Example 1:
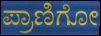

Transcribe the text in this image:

ಪ್ರಾಣಿಗೋ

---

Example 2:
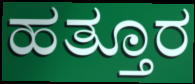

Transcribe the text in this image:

ಹತ್ತೂರ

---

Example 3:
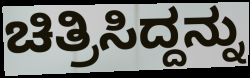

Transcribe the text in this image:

ಚಿತ್ರಿಸಿದ್ದನ್ನು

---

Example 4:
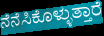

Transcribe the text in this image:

ನೆನೆಸಿಕೊಳ್ಳುತ್ತಾರೆ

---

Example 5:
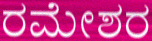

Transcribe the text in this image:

ರಮೇಶರ